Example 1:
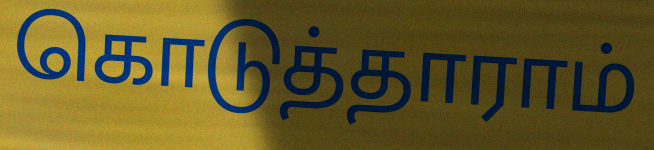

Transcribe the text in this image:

கொடுத்தாராம்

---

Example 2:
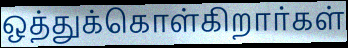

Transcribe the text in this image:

ஒத்துக்கொள்கிறார்கள்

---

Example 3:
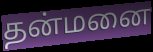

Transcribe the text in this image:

தன்மனை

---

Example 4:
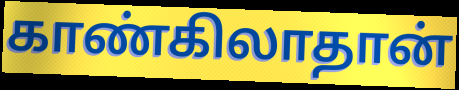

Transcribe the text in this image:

காண்கிலாதான்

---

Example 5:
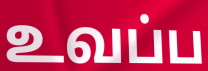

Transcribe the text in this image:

உவப்ப